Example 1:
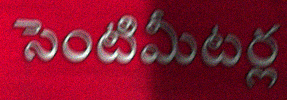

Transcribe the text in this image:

సెంటిమీటర్ల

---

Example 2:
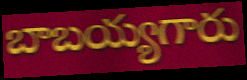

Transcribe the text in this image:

బాబయ్యగారు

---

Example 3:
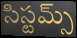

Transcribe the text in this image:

సిస్టమ్స్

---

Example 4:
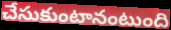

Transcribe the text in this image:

చేసుకుంటానంటుంది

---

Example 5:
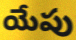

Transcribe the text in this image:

యేపు